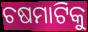
ଚଷମାଟିକୁ